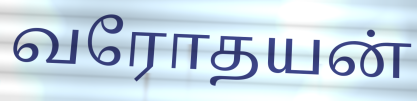
வரோதயன்